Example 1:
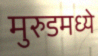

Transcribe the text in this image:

मुरुडमध्ये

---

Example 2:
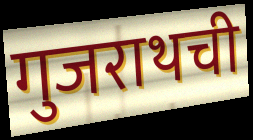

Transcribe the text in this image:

गुजराथची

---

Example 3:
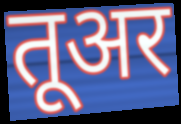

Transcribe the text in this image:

तूअर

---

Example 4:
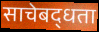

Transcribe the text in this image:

साचेबद्धता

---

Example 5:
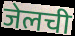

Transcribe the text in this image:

जेलची